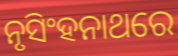
ନୃସିଂହନାଥରେ